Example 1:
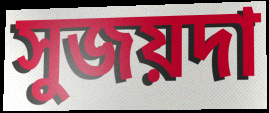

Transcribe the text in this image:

সুজয়দা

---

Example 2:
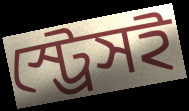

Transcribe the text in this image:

স্ট্রেসই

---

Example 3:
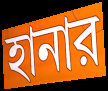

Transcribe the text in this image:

হানার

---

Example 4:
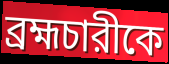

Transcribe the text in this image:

ব্রহ্মচারীকে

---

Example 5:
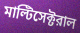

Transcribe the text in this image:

মাল্টিসেক্টরাল